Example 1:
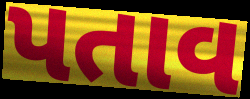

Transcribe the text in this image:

પતાવ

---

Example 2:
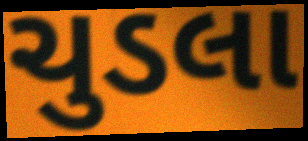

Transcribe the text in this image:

ચુડલા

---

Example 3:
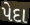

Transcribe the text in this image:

પેદા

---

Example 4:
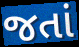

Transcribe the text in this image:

જતાં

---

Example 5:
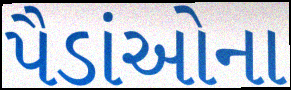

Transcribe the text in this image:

પૈડાંઓના